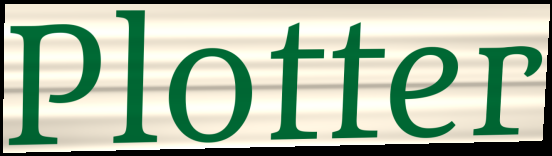
Plotter